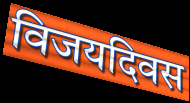
विजयदिवस